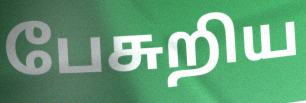
பேசுறிய